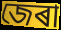
জেৰা